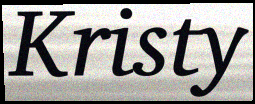
Kristy